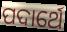
ପଦାର୍ଥେ